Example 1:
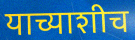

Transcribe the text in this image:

याच्याशीच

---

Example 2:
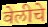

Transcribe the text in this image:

वेलीचे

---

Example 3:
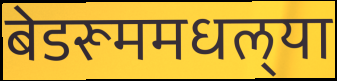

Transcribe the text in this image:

बेडरूममधल्या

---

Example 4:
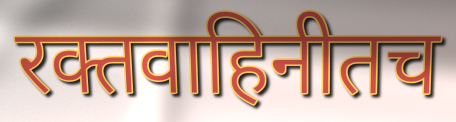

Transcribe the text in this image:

रक्तवाहिनीतच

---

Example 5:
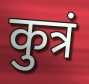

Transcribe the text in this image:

कुत्रं